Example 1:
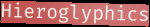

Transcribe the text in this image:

Hieroglyphics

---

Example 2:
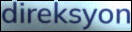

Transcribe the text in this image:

direksyon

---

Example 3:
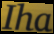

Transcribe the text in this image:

Iha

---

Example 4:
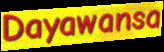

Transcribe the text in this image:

Dayawansa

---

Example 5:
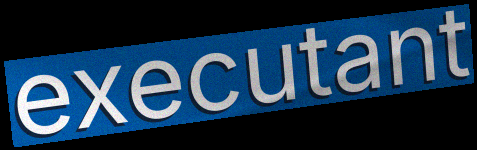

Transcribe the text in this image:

executant